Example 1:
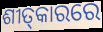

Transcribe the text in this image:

ଶୀତ୍‌କାରରେ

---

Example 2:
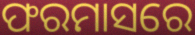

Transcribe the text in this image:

ଫରମାସରେ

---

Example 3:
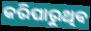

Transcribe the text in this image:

କରିପାରୁଥିଵ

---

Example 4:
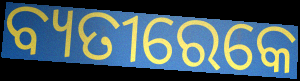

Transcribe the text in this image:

ବ୍ୟତୀରେକେ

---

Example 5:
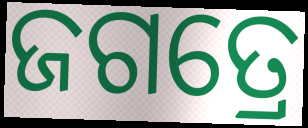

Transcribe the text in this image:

ଜଗତ୍ରେ